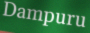
Dampuru